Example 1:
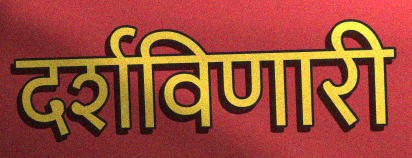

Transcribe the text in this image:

दर्शविणारी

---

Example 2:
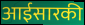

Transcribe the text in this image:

आईसारकी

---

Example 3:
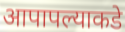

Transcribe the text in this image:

आपापल्याकडे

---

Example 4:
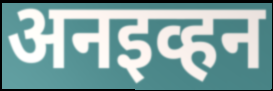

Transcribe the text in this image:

अनइव्हन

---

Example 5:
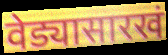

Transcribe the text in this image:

वेड्यासारखं